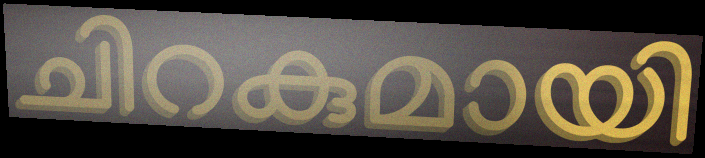
ചിറകുമായി